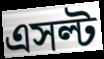
এসল্ট